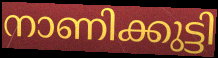
നാണിക്കുട്ടി